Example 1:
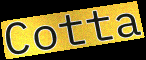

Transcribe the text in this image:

Cotta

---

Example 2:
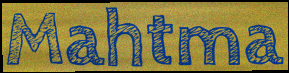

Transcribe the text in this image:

Mahtma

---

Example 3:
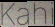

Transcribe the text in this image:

Kahi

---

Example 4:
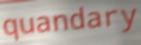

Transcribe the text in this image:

quandary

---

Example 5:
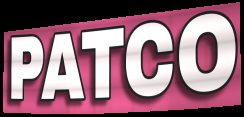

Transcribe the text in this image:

PATCO